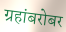
ग्रहांबरोबर